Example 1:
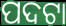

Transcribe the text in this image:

ପଦଟା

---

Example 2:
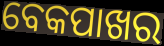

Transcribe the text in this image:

ବେକପାଖର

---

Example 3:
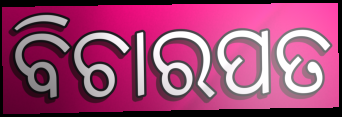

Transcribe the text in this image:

ବିଚାରପତ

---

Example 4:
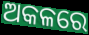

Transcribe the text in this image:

ଅକଳରେ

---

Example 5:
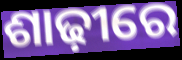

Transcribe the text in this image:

ଶାଢ଼ୀରେ